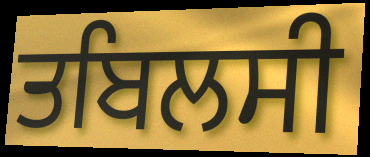
ਤਬਿਲਸੀ